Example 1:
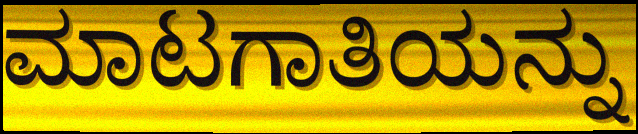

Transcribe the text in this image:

ಮಾಟಗಾತಿಯನ್ನು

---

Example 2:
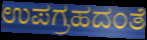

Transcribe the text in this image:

ಉಪಗ್ರಹದಂತೆ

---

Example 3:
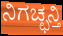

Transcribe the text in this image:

ನಿಗಚ್ಛನ್ತಿ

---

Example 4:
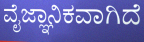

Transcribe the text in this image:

ವೈಜ್ಞಾನಿಕವಾಗಿದೆ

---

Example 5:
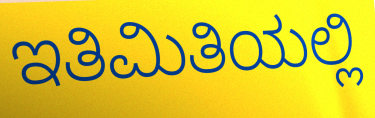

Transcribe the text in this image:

ಇತಿಮಿತಿಯಲ್ಲಿ